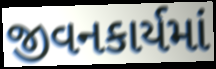
જીવનકાર્યમાં